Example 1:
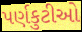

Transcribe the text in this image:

પર્ણકુટીઓ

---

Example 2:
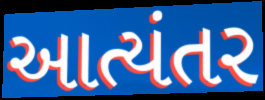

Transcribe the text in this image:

આત્યંતર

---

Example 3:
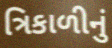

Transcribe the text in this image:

ત્રિકાળીનું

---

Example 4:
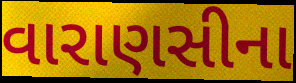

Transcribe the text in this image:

વારાણસીના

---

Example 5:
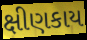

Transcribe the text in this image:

ક્ષીણકાય